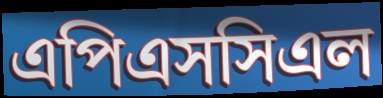
এপিএসসিএল